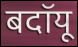
बदॉयू